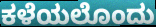
ಕಳೆಯಲೊಂದು